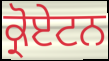
ਕ੍ਰੋਏਟਨ